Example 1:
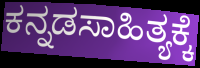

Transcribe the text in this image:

ಕನ್ನಡಸಾಹಿತ್ಯಕ್ಕೆ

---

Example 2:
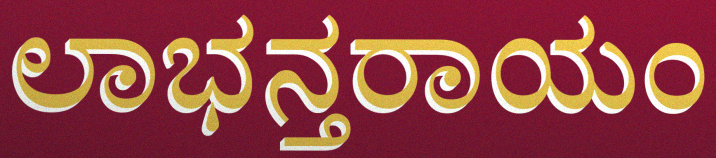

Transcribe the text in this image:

ಲಾಭನ್ತರಾಯಂ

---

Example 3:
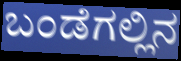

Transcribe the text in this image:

ಬಂಡೆಗಲ್ಲಿನ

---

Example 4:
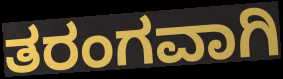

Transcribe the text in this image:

ತರಂಗವಾಗಿ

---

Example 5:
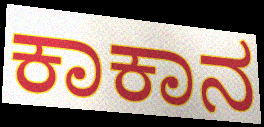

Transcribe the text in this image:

ಕಾಕಾನ